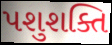
પશુશક્તિ